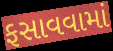
ફસાવવામાં